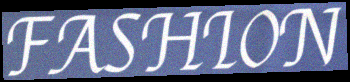
FASHION